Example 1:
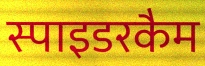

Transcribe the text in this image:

स्पाइडरकैम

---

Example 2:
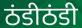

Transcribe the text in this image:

ठंडीठंडी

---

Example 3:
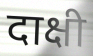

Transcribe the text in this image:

दाक्षी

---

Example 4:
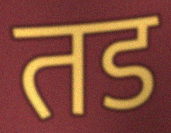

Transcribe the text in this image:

तड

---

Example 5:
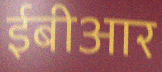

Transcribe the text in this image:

ईबीआर